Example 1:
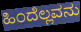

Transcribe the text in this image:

ಹಿಂದೆಲ್ಲವನು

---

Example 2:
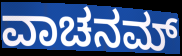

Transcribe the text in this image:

ವಾಚನಮ್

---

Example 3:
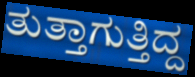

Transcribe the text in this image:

ತುತ್ತಾಗುತ್ತಿದ್ದ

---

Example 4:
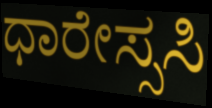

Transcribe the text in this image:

ಧಾರೇಸ್ಸಸಿ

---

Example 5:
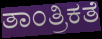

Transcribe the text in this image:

ತಾಂತ್ರಿಕತೆ